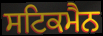
ਸਟਿਕਮੈਨ